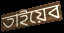
তাইয়েব